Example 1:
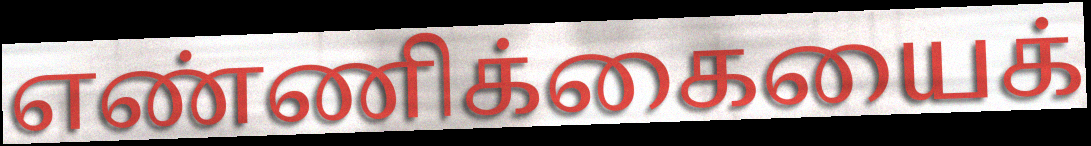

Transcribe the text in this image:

எண்ணிக்கையைக்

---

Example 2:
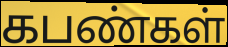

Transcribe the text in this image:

கபண்கள்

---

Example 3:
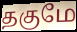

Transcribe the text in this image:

தகுமே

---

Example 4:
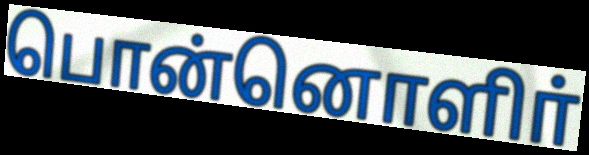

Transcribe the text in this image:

பொன்னொளிர்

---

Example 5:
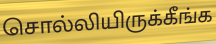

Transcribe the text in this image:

சொல்லியிருக்கீங்க